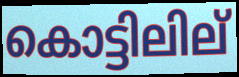
കൊട്ടിലില്